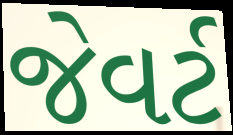
જેવર્ટ